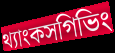
থ্যাংকসগিভিং